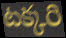
టక్కరి